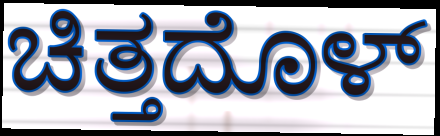
ಚಿತ್ತದೊಳ್